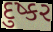
દુષ્કર